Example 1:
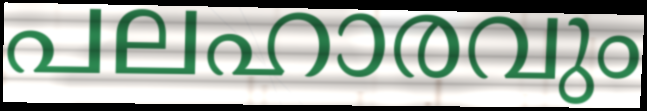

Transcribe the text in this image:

പലഹാരവും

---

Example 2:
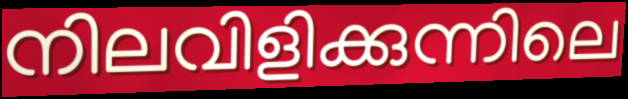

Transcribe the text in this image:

നിലവിളിക്കുന്നിലെ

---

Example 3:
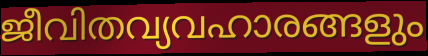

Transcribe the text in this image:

ജീവിതവ്യവഹാരങ്ങളും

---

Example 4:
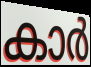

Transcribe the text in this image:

കാർ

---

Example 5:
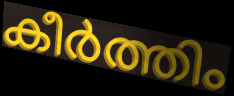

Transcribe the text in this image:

കീർത്തിം